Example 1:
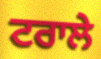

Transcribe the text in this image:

ਟਰਾਲੇ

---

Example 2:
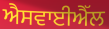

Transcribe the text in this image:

ਐਸਵਾਈਐੱਲ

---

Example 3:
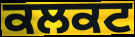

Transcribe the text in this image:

ਕਲਕਟ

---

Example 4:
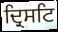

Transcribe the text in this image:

ਦ੍ਰਿਸਟਿ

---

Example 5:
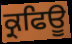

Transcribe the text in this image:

ਕ੍ਰਫਿਊ